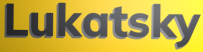
Lukatsky